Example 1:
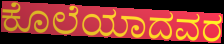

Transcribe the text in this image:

ಕೊಲೆಯಾದವರ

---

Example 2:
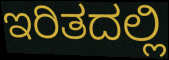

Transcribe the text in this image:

ಇರಿತದಲ್ಲಿ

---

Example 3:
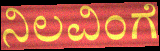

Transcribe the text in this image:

ನಿಲವಿಂಗೆ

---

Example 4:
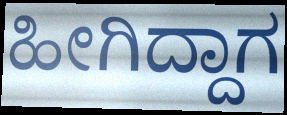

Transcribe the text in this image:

ಹೀಗಿದ್ದಾಗ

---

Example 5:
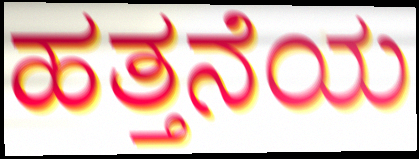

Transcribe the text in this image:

ಹತ್ತನೆಯ